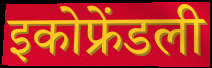
इकोफ्रेंडली